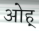
ओह्